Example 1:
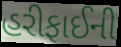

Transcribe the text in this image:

હરીફાઈની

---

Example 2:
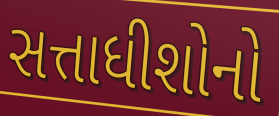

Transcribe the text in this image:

સત્તાધીશોનો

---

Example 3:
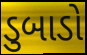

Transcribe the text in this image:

ડુબાડો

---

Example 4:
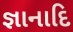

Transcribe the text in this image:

જ્ઞાનાદિ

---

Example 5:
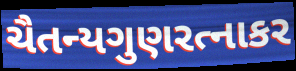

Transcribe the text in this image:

ચૈતન્યગુણરત્નાકર